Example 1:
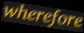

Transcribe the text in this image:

wherefore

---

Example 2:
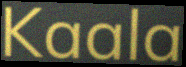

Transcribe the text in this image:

Kaala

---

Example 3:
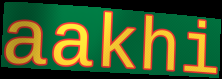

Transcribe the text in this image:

aakhi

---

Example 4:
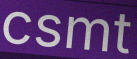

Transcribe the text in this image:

csmt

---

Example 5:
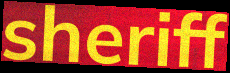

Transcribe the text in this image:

sheriff